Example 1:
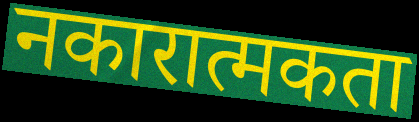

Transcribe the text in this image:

नकारात्मकता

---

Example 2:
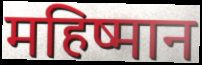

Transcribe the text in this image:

महिष्मान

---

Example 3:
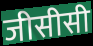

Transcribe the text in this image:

जीसीसी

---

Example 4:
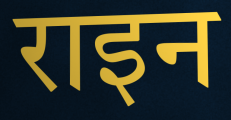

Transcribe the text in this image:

राइन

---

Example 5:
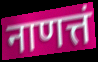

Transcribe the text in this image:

नाणत्तं